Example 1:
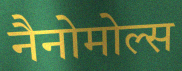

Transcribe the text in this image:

नैनोमोल्स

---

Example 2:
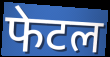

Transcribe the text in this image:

फेटल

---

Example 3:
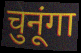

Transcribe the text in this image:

चुनूंगा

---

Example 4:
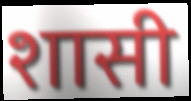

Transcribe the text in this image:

शासी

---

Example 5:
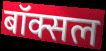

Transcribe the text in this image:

बॉक्सल